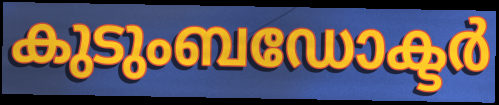
കുടുംബഡോക്ടർ